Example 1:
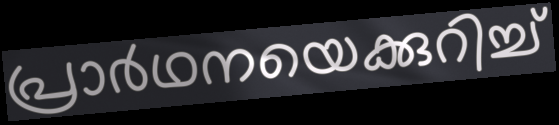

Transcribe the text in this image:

പ്രാർഥനയെക്കുറിച്ച്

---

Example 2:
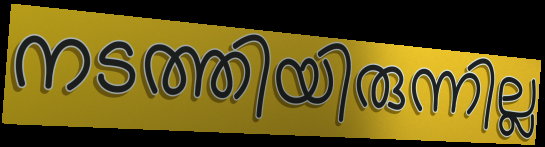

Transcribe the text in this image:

നടത്തിയിരുന്നില്ല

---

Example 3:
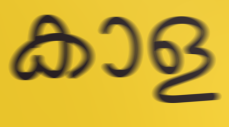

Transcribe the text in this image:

കാള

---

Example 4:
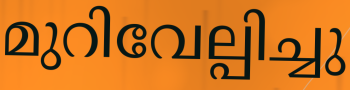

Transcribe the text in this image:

മുറിവേല്പിച്ചു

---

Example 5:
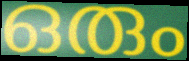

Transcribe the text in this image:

ഒരും